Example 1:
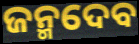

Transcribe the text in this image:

ଜନ୍ମଦେବ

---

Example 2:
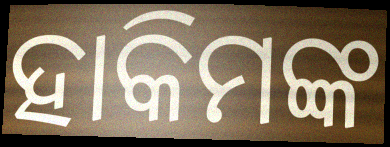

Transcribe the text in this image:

ହାକିମଙ୍କ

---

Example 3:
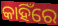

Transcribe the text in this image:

କାହିଁରେ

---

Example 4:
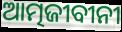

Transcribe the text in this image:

ଆତ୍ମଜୀବୀନୀ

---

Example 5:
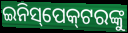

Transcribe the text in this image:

ଇନିସ୍‌ପେକ୍‍ଟରଙ୍କୁ